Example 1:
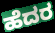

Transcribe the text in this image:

ಹೆದರ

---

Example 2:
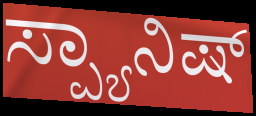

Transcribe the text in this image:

ಸ್ಪ್ಯಾನಿಷ್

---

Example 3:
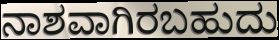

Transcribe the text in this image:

ನಾಶವಾಗಿರಬಹುದು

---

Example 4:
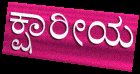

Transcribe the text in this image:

ಕ್ಷಾರೀಯ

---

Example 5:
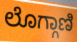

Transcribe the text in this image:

ಲೊಗ್ಗಾಣಿ